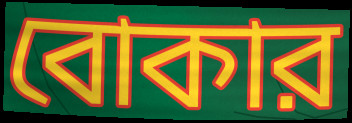
বোকার